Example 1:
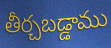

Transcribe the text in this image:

తీర్చబడ్డాము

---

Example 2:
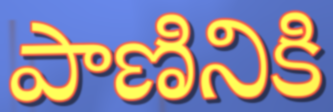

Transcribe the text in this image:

పాణినికి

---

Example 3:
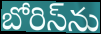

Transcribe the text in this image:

బోరిస్‌ను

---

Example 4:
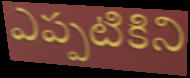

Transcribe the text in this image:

ఎప్పటికిని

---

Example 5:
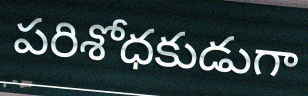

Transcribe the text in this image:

పరిశోధకుడుగా